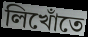
লিখোঁতে